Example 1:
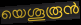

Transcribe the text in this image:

യെശൂരൂൻ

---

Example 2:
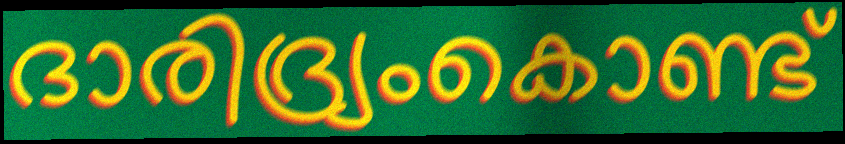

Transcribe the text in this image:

ദാരിദ്ര്യംകൊണ്ട്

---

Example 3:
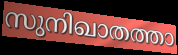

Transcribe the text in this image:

സുനിഖാതത്താ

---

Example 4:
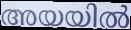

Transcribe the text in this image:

അയയിൽ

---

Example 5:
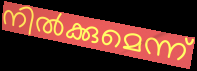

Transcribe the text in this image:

നിൽക്കുമെന്ന്